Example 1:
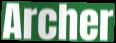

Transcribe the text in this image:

Archer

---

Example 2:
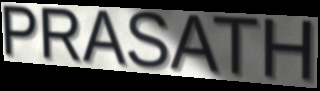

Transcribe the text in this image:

PRASATH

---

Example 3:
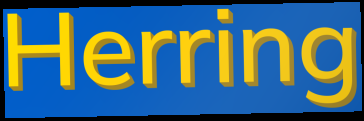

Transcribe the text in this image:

Herring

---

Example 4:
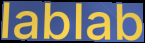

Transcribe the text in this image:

lablab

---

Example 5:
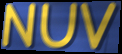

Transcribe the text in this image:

NUV